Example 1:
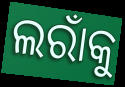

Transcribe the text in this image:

ଲରାଁକୁ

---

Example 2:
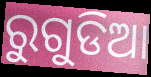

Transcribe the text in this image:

ରୁଗୁଡିଆ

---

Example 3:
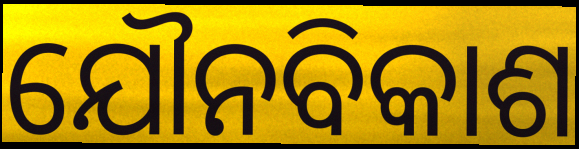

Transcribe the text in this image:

ଯୌନବିକାଶ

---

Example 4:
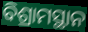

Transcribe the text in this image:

ବିଶ୍ରାମସ୍ଥାନ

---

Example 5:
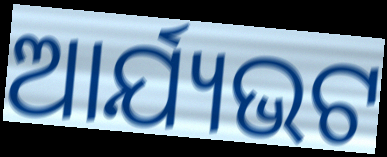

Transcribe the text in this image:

ଆର୍ଯ୍ୟଭଟ